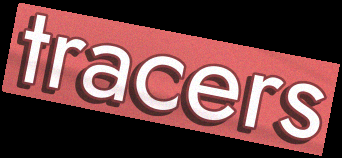
tracers